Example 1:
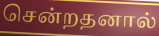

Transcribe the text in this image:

சென்றதனால்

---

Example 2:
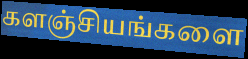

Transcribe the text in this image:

களஞ்சியங்களை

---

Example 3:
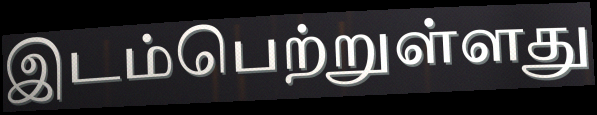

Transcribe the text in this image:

இடம்பெற்றுள்ளது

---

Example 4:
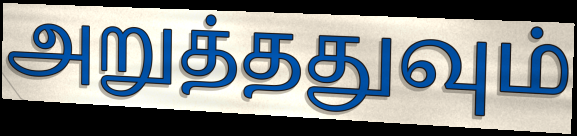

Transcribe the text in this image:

அறுத்ததுவும்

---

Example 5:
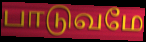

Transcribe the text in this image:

பாடுவமே